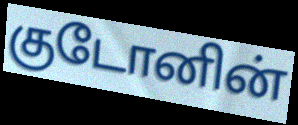
குடோனின்